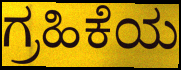
ಗ್ರಹಿಕೆಯ